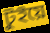
টুইয়ে